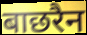
बाछरैन